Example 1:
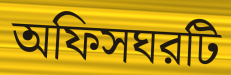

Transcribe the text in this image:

অফিসঘরটি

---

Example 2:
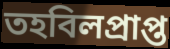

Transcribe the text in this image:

তহবিলপ্রাপ্ত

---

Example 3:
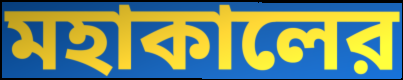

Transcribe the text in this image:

মহাকালের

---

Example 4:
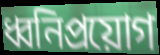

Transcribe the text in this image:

ধ্বনিপ্রয়োগ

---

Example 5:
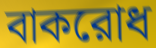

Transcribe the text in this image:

বাকরোধ